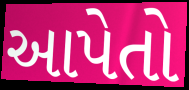
આપેતો